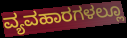
ವ್ಯವಹಾರಗಳಲ್ಲೂ